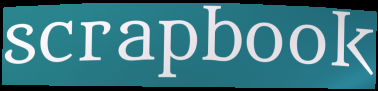
scrapbook